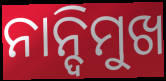
ନାନ୍ଦିମୁଖ